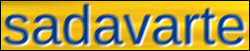
sadavarte